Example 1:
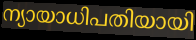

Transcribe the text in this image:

ന്യായാധിപതിയായി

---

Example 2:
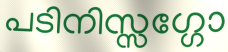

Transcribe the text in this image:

പടിനിസ്സഗ്ഗോ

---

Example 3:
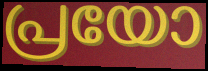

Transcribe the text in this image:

പ്രയോ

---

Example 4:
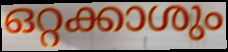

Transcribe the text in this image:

ഒറ്റക്കാശും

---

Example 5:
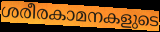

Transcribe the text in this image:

ശരീരകാമനകളുടെ